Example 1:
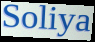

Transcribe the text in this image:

Soliya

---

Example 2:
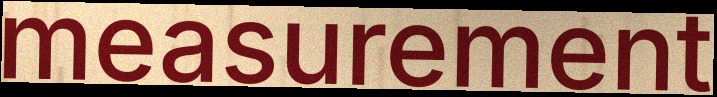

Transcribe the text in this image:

measurement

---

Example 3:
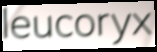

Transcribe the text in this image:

leucoryx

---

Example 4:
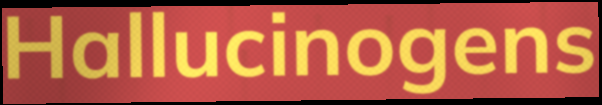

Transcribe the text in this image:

Hallucinogens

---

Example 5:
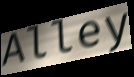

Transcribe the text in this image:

Alley